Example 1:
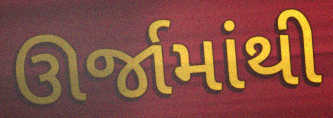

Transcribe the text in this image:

ઊર્જામાંથી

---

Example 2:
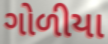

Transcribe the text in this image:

ગોળીયા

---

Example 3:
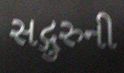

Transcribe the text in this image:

સદ્ગુરુની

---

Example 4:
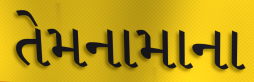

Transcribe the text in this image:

તેમનામાના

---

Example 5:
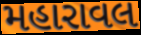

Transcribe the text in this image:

મહારાવલ